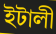
ইটালী